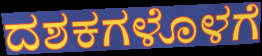
ದಶಕಗಳೊಳಗೆ